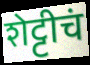
शेट्टीचं